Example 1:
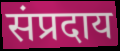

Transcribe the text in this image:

संप्रदाय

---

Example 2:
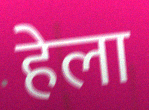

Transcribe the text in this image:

हेला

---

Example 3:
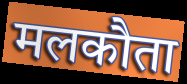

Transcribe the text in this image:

मलकौता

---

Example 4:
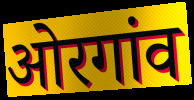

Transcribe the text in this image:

ओरगांव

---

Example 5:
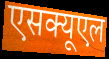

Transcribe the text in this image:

एसक्यूएल